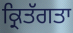
ਕ੍ਰਿਤੱਗਤਾ